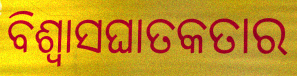
ବିଶ୍ଵାସଘାତକତାର